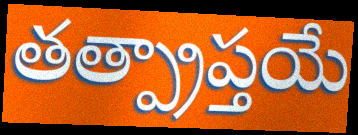
తత్ప్రాప్తయే